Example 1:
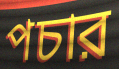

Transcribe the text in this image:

পচার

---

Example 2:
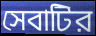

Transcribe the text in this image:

সেবাটির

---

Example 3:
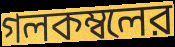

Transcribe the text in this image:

গলকম্বলের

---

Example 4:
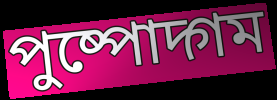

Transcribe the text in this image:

পুষ্পোদ্গম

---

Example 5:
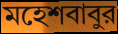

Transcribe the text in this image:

মহেশবাবুর